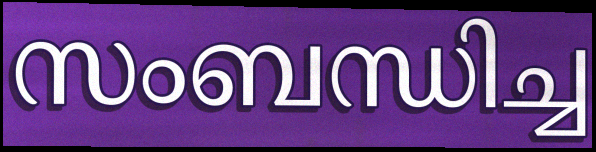
സംബന്ധിച്ച